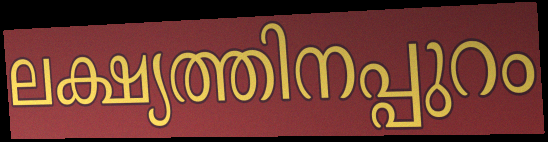
ലക്ഷ്യത്തിനപ്പുറം